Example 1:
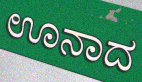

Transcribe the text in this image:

ಊನಾದ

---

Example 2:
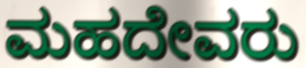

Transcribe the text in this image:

ಮಹದೇವರು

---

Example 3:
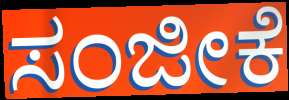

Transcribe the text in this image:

ಸಂಜೀಕೆ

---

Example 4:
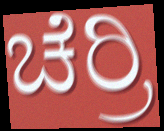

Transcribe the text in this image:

ಚೆರ‍್ರಿ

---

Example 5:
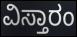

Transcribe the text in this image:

ವಿಸ್ತಾರಂ